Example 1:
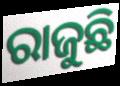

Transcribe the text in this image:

ରାଜୁଛି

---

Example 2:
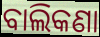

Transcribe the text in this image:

ବାଲିକଣା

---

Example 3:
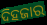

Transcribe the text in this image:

ଦିହଜାର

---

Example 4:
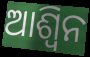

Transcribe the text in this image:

ଆଶ୍ୱିନ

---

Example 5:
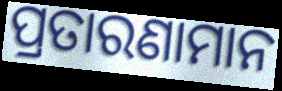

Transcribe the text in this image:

ପ୍ରତାରଣାମାନ